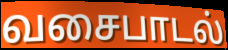
வசைபாடல்